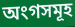
অংগসমূহ